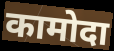
कामोदा